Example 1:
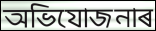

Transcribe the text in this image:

অভিযোজনাৰ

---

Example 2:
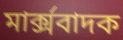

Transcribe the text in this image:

মাৰ্ক্সবাদক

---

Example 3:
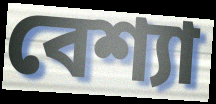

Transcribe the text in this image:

বেশ্যা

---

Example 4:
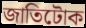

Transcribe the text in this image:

জাতিটোক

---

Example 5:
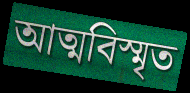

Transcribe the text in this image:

আত্মবিস্মৃত